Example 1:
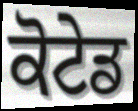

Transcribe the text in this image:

ਕੋਟੇਡ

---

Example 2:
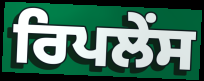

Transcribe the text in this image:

ਰਿਪਲੇਂਸ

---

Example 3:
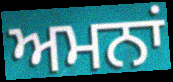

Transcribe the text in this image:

ਅਮਨਾਂ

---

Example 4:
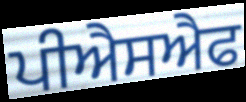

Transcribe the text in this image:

ਪੀਐਸਐਫ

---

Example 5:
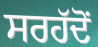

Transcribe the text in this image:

ਸਰਹੱਦੋਂ